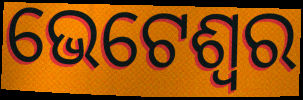
ଭେଟେଶ୍ୱର